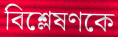
বিশ্লেষণকে